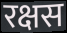
रक्षस